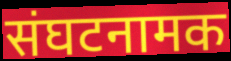
संघटनामक